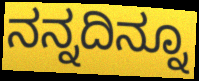
ನನ್ನದಿನ್ನೂ